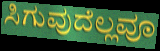
ಸಿಗುವುದೆಲ್ಲವೂ